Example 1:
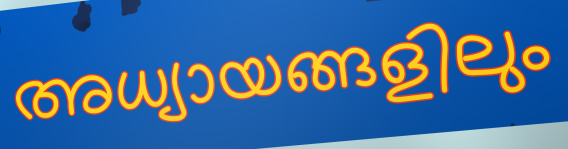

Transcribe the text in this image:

അധ്യായങ്ങളിലും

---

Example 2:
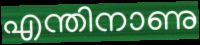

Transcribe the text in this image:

എന്തിനാണു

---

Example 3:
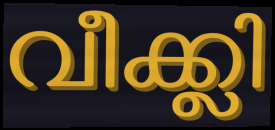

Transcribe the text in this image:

വീക്ക്ലി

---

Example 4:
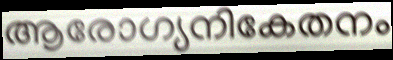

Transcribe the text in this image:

ആരോഗ്യനികേതനം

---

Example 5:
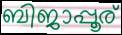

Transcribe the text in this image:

ബിജാപ്പൂര്